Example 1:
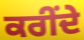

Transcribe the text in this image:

ਕਰੀਂਦੇ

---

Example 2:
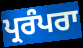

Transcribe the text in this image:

ਪ੍ਰਰੰਪਰਾ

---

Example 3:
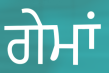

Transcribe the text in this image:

ਗੇਮਾਂ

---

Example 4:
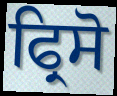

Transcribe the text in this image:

ਫ੍ਰਿਸੋ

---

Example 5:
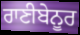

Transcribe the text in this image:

ਰਾਣੀਬੇਨੂਰ